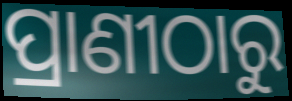
ପ୍ରାଣୀଠାରୁ